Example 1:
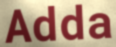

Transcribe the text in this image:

Adda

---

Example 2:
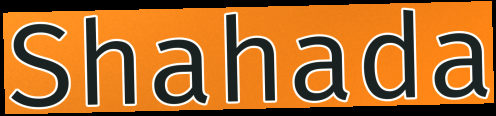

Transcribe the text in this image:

Shahada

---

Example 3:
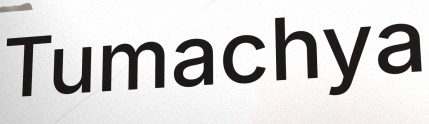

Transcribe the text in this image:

Tumachya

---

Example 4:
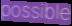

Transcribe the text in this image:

possible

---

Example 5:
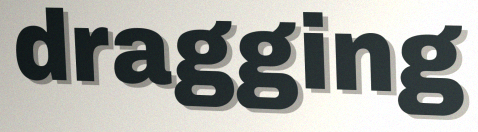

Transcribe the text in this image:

dragging